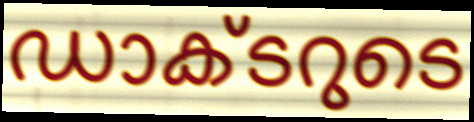
ഡാക്ടറുടെ